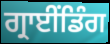
ਗ੍ਰਾਈਂਡਿੰਗ